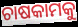
ଚାଷକାମକୁ